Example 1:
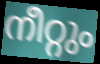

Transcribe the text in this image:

നീറ്റും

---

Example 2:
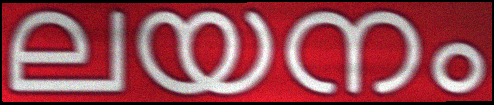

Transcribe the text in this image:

ലയനം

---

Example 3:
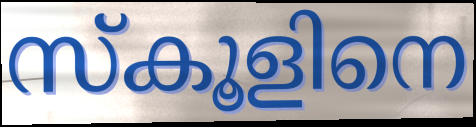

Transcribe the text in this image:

സ്കൂളിനെ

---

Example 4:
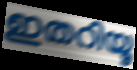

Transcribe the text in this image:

ഇതറിയൂ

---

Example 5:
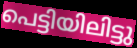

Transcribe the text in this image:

പെട്ടിയിലിട്ടു